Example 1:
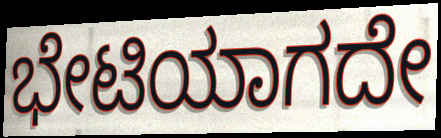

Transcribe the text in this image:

ಭೇಟಿಯಾಗದೇ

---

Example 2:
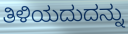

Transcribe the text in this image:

ತಿಳಿಯದುದನ್ನು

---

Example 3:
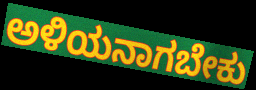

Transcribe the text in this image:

ಅಳಿಯನಾಗಬೇಕು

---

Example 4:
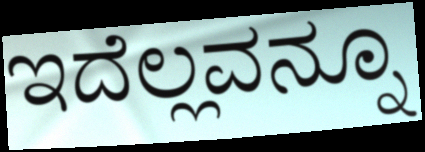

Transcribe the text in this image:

ಇದೆಲ್ಲವನ್ನೂ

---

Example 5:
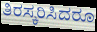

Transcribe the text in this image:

ತಿರಸ್ಕರಿಸಿದರೂ